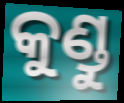
କୁଣ୍ଡୁ